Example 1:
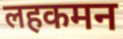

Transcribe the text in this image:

लहकमन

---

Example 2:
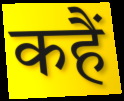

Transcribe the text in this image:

कहैं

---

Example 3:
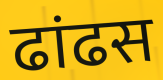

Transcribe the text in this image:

ढांढस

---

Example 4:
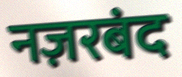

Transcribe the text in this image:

नज़रबंद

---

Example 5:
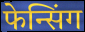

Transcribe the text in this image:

फेन्सिंग